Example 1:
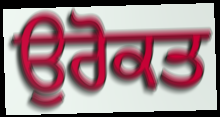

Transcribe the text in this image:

ਉਰੋਕਤ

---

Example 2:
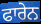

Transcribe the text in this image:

ਫਾਰੇਨ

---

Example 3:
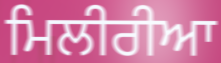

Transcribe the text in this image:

ਮਿਲੀਰੀਆ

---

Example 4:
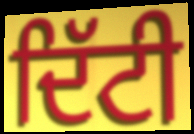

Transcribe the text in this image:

ਦਿੱਟੀ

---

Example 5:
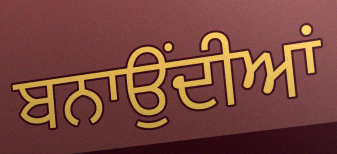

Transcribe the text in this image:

ਬਨਾਉਂਦੀਆਂ